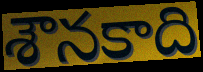
శౌనకాది